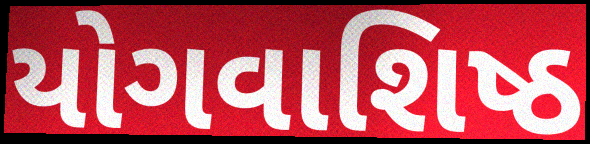
યોગવાશિષ્ઠ